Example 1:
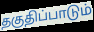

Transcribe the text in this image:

தகுதிப்பாடும்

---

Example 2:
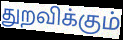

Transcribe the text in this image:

துறவிக்கும்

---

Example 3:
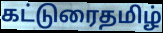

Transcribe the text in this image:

கட்டுரைதமிழ்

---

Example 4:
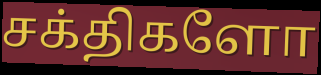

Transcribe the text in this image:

சக்திகளோ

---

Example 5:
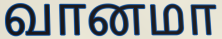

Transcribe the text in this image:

வானமா